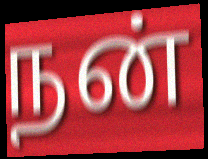
நன்